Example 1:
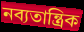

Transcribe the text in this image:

নব্যতান্ত্রিক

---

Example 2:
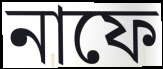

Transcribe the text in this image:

নাফে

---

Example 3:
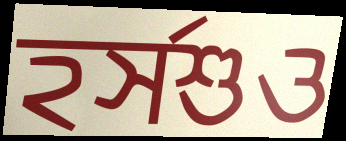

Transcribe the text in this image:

হর্সশুও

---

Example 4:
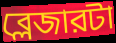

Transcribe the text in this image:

ব্লেজারটা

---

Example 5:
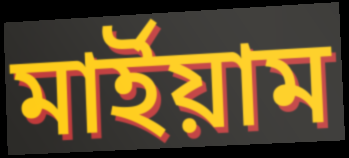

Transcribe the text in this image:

মার্ইয়াম